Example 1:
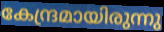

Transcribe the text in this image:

കേന്ദ്രമായിരുന്നു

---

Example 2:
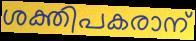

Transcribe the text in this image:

ശക്തിപകരാന്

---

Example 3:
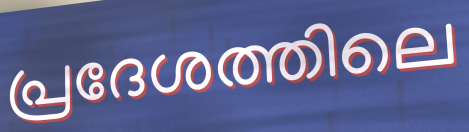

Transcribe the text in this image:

പ്രദേശത്തിലെ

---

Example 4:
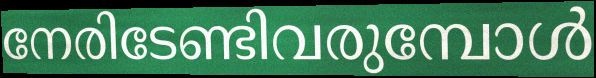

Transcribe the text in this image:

നേരിടേണ്ടിവരുമ്പോൾ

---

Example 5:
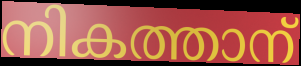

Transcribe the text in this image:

നികത്താന്